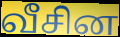
வீசின